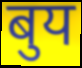
बुय